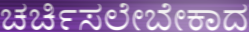
ಚರ್ಚಿಸಲೇಬೇಕಾದ